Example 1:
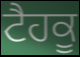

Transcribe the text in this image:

ਟੈਹਕੂ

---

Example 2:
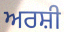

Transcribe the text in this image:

ਅਰਸ਼ੀ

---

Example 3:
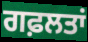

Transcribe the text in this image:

ਗਫ਼ਲਤਾਂ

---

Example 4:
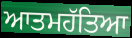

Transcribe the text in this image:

ਆਤਮਹੱਤਿਆ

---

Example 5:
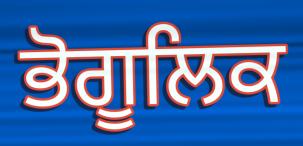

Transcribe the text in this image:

ਭੋਗੂਲਿਕ